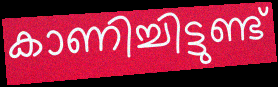
കാണിച്ചിട്ടുണ്ട്